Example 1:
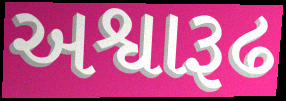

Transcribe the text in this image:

અશ્વારૂઢ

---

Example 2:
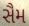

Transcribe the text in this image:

સૈમ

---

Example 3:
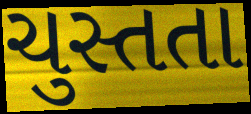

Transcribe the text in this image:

ચુસ્તતા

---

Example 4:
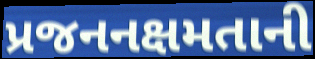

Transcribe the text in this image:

પ્રજનનક્ષમતાની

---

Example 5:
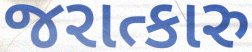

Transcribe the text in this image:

જરાત્કારુ